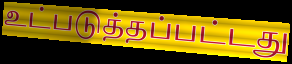
உட்படுத்தப்பட்டது